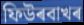
ফিউৰবাখৰ